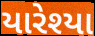
યારેશ્યા